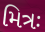
મિત્રઃ